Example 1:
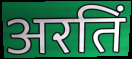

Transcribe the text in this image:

अरतिं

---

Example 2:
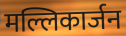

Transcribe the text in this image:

मल्लिकार्जन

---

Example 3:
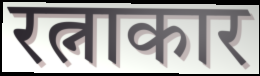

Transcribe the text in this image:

रत्नाकार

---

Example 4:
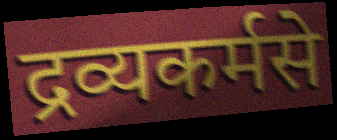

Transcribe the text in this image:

द्रव्यकर्मसे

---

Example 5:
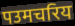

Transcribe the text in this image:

पउमचरिय